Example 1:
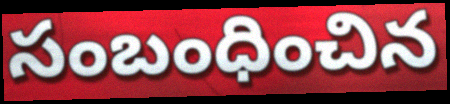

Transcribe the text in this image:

సంబంధించిన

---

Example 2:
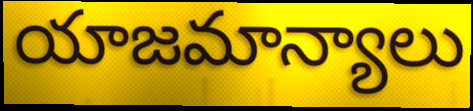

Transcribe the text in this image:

యాజమాన్యాలు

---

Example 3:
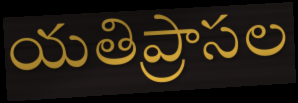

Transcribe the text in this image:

యతిప్రాసల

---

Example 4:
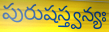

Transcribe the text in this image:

పురుషస్త్వన్యః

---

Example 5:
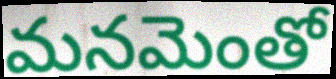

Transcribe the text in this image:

మనమెంతో